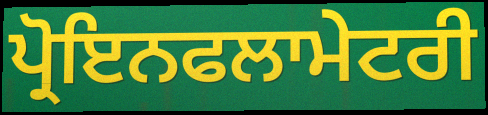
ਪ੍ਰੋਇਨਫਲਾਮੇਟਰੀ